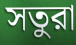
সতুরা